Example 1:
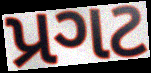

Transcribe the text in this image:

પ્રગટ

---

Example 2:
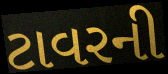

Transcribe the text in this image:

ટાવરની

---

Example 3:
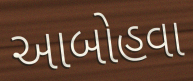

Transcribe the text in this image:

આબોહવા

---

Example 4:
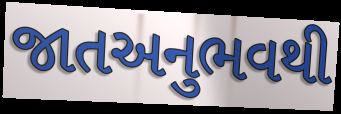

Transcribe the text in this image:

જાતઅનુભવથી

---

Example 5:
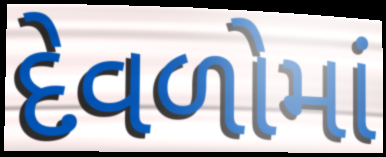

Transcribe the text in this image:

દેવળોમાં